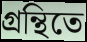
গ্রন্থিতে